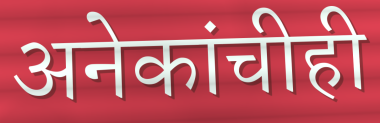
अनेकांचीही